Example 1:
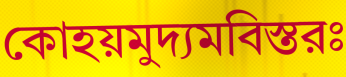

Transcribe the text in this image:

কোহয়মুদ্যমবিস্তরঃ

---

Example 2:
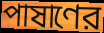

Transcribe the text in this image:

পাষাণের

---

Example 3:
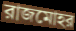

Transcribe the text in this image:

রাজমোহর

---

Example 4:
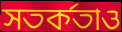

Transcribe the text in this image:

সতর্কতাও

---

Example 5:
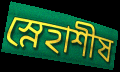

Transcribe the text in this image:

স্নেহাশীষ